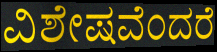
ವಿಶೇಷವೆಂದರೆ